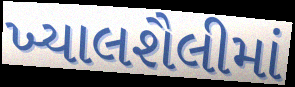
ખ્યાલશૈલીમાં